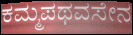
ಕಮ್ಮಪಥವಸೇನ